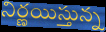
నిర్ణయిస్తున్న